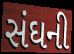
સંઘની